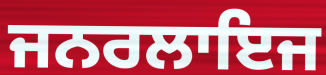
ਜਨਰਲਾਇਜ